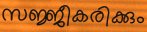
സജ്ജീകരിക്കും